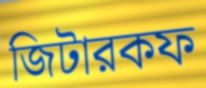
জিটারকফ